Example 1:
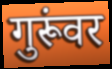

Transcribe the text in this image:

गुरूंवर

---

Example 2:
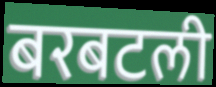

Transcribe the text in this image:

बरबटली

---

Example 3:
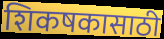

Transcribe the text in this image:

शिकषकासाठी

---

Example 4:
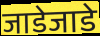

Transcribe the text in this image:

जाडेजाडे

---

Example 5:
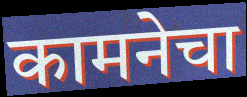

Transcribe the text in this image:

कामनेचा